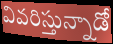
వివరిస్తున్నాడో